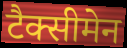
टैक्सीमेन